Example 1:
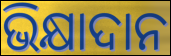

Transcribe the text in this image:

ଭିକ୍ଷାଦାନ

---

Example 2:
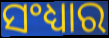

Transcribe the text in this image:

ସଂଧ୍ୟାର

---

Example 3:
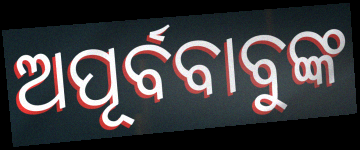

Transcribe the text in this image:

ଅପୂର୍ବବାବୁଙ୍କ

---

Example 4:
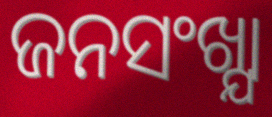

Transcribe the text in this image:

ଜନସଂଖ୍ଯା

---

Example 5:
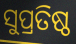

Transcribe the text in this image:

ସୁପ୍ରତିଷ୍ଠ